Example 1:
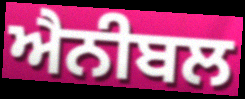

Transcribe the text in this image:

ਐਨੀਬਲ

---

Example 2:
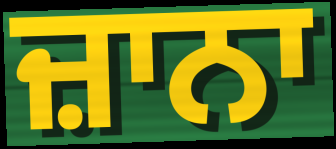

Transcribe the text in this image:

ਜ਼ਾਨਾ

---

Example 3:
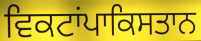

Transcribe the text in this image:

ਵਿਕਟਾਂਪਾਕਿਸਤਾਨ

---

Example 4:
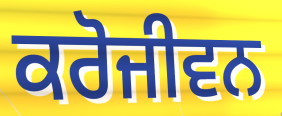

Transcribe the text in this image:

ਕਰੋਜੀਵਨ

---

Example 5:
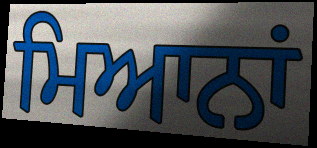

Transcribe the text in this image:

ਮਿਆਨਾਂ